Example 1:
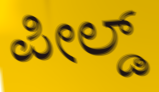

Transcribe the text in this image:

ಪೀಲ್ಡ್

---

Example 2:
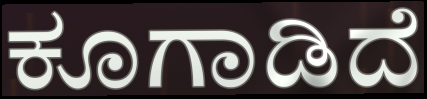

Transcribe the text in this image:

ಕೂಗಾಡಿದೆ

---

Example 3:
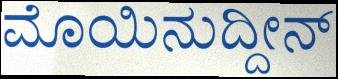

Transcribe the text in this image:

ಮೊಯಿನುದ್ದೀನ್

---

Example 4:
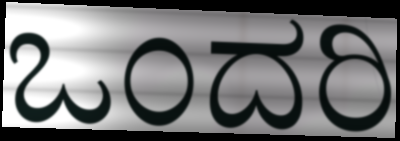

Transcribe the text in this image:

ಒಂದರಿ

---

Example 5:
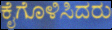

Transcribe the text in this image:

ಕೈಗೊಳಿಸಿದರು